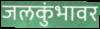
जलकुंभावर